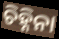
ଚିହ୍ନିନା